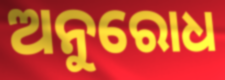
ଅନୁରୋଧ